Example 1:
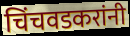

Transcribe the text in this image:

चिंचवडकरांनी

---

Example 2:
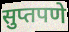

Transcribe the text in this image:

सुप्तपणे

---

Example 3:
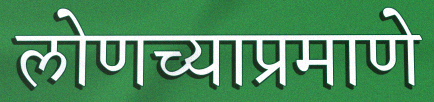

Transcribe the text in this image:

लोणच्याप्रमाणे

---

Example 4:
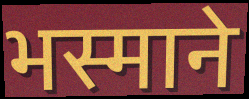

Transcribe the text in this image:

भस्माने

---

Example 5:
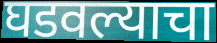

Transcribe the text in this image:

घडवल्याचा